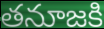
తనూజకి